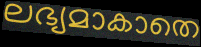
ലഭ്യമാകാതെ